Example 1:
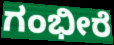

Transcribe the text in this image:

ಗಂಭೀರೆ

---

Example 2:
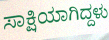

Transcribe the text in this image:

ಸಾಕ್ಷಿಯಾಗಿದ್ದಳು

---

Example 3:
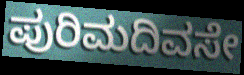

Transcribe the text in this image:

ಪುರಿಮದಿವಸೇ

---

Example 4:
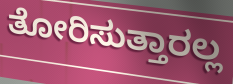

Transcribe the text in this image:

ತೋರಿಸುತ್ತಾರಲ್ಲ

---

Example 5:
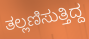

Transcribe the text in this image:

ತಲ್ಲಣಿಸುತ್ತಿದ್ದ